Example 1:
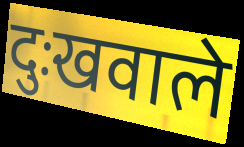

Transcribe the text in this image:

दुःखवाले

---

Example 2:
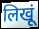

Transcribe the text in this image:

लिखूं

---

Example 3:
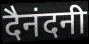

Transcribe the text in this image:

दैनंदनी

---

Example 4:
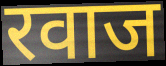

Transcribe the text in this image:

रवाज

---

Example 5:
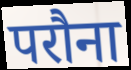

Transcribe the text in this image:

परौना